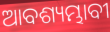
ଆବଶ୍ୟମ୍ଭାବୀ